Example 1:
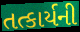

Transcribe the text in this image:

તત્કાર્યની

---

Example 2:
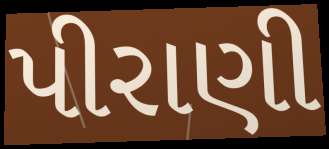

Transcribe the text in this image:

પીરાણી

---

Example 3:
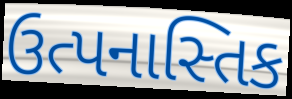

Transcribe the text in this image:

ઉત્પનાસ્તિક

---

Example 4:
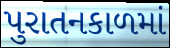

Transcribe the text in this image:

પુરાતનકાળમાં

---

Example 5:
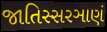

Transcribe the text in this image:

જાતિસ્સરઞાણં